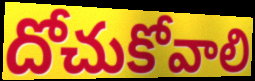
దోచుకోవాలి